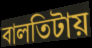
বালতিটায়